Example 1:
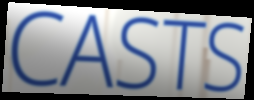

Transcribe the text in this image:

CASTS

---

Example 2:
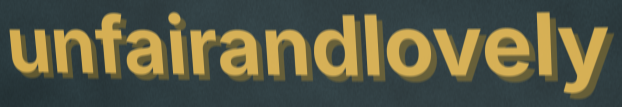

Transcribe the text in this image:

unfairandlovely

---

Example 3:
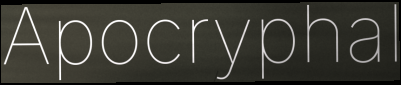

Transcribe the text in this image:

Apocryphal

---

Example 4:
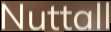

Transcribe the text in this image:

Nuttall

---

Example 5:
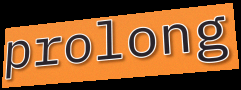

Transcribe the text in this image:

prolong